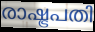
രാഷ്ട്രപതി